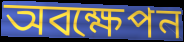
অবক্ষেপন